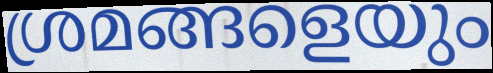
ശ്രമങ്ങളെയും